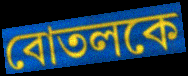
বোতলকে